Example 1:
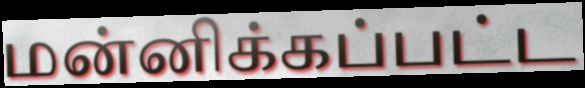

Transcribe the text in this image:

மன்னிக்கப்பட்ட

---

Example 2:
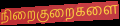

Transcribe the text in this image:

நிறைகுறைகளை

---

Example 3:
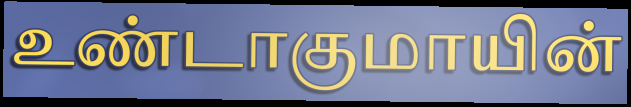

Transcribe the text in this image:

உண்டாகுமாயின்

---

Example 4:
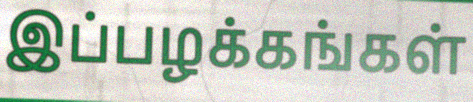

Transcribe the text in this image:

இப்பழக்கங்கள்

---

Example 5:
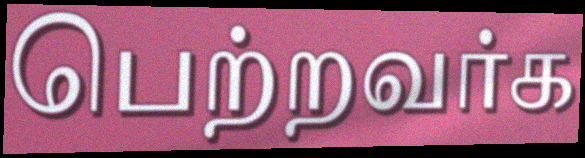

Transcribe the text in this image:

பெற்றவர்க